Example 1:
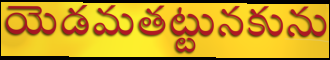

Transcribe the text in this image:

యెడమతట్టునకును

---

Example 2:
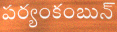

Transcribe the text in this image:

పర్యంకంబున్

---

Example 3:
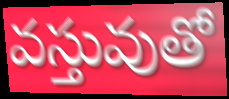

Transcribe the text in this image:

వస్తువుతో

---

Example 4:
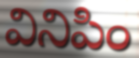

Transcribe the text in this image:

వినిపిం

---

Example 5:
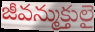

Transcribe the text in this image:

జీవన్ముక్తులై